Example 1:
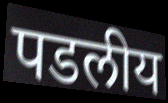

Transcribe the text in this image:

पडलीय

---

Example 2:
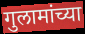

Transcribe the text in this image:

गुलामांच्या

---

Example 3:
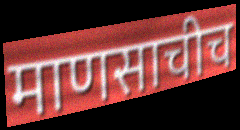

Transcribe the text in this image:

माणसाचीच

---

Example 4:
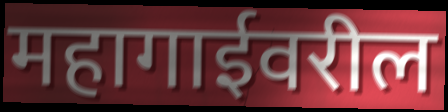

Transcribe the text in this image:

महागाईवरील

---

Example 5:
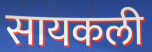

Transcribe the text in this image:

सायकली